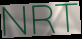
NRT